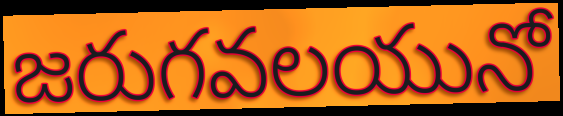
జరుగవలయునో